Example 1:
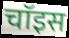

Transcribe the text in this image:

चॉइस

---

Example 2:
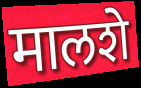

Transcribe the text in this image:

मालशे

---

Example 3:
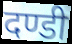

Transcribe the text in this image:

दण्डी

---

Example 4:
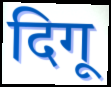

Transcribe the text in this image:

दिगू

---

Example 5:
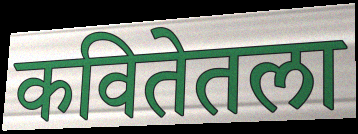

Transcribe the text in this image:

कवितेतला